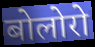
बोलोरो